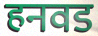
हनवड